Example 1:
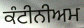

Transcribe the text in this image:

ਕੰਟੀਨੀਅਮ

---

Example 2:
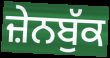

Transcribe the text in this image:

ਜ਼ੇਨਬੁੱਕ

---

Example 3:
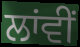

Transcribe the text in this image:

ਲਾਂਵੀਂ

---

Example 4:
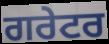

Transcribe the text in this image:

ਗਰੇਟਰ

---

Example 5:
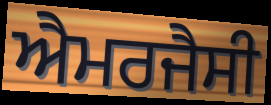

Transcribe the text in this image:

ਐਮਰਜੈਸੀ